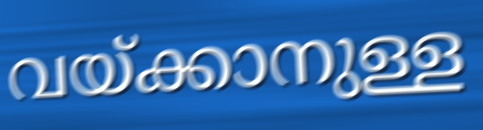
വയ്ക്കാനുള്ള